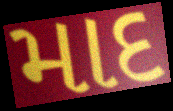
માદ